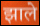
झाले